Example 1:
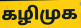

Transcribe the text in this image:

கழிமுக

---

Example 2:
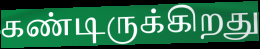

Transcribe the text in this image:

கண்டிருக்கிறது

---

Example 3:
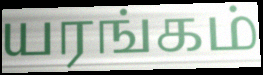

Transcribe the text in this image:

யரங்கம்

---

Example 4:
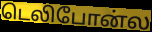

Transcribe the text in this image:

டெலிபோன்ல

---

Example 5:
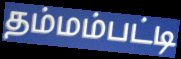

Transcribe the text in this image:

தம்மம்பட்டி